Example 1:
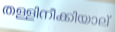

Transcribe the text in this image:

തള്ളിനീക്കിയാല്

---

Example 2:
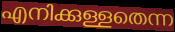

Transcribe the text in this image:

എനിക്കുള്ളതെന്ന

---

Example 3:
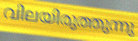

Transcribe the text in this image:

വിലയിരുത്തുന്നു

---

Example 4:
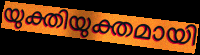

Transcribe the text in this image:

യുക്തിയുക്തമായി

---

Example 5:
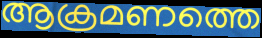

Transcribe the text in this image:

ആക്രമണത്തെ